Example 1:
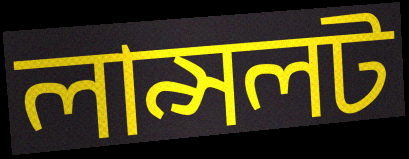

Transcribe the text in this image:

লান্সলট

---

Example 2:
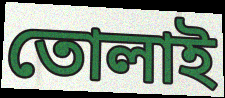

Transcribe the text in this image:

তোলাই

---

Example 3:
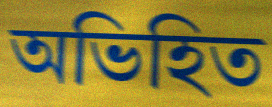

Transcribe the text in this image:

অভিহিত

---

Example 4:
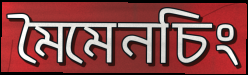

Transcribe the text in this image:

মৈমেনচিং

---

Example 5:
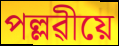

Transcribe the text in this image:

পল্লৱীয়ে